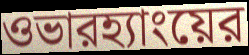
ওভারহ্যাংয়ের